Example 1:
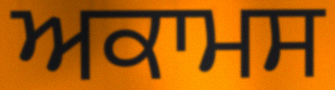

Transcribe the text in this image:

ਅਕਾਮਸ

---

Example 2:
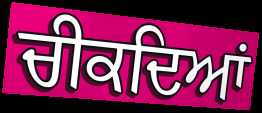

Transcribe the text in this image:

ਚੀਕਦਿਆਂ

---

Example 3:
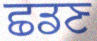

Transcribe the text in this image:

ਛਡਣ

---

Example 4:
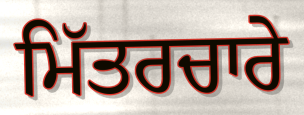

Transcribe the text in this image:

ਮਿੱਤਰਚਾਰੇ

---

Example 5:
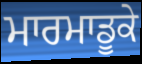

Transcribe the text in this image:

ਮਾਰਮਾਡੂਕੇ